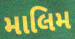
માલિમ